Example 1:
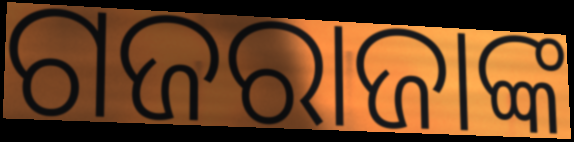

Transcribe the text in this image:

ଗଜରାଜାଙ୍କ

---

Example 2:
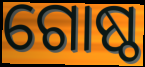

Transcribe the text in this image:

ଗୋଷ୍ଠ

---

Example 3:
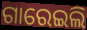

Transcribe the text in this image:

ଗାରେଇଲି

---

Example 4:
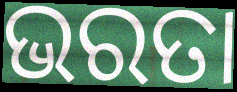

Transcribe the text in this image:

ଭରତା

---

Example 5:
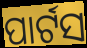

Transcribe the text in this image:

ପାର୍ଟସ